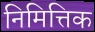
निमित्तिक